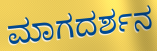
ಮಾಗದರ್ಶನ